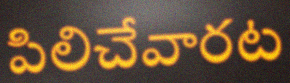
పిలిచేవారట